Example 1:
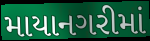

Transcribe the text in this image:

માયાનગરીમાં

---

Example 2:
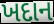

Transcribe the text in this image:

ખદાન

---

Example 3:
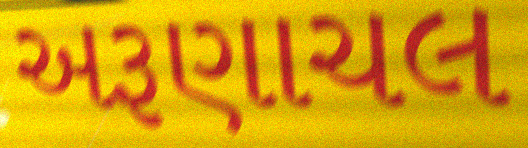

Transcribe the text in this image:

અરૂણાચલ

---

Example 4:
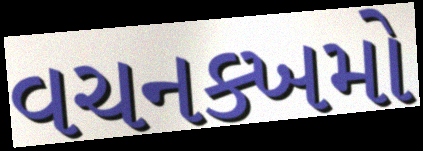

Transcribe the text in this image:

વચનક્ખમો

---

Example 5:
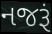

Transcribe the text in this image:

નજરૂં